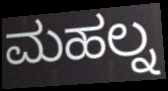
ಮಹಲ್ನ